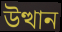
উত্থান